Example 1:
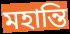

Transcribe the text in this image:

মহান্তি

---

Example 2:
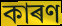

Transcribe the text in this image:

কাৰণ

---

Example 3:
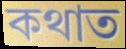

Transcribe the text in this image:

কথাত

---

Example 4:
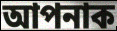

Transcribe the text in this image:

আপনাক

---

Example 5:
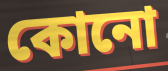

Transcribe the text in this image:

কোনো